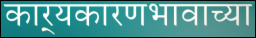
कार्यकारणभावाच्या